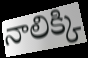
నాలిక్కి